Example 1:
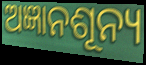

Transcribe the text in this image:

ଅଜ୍ଞାନଶୂନ୍ୟ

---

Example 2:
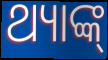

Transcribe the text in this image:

ଥ୍ୟାଙ୍କ୍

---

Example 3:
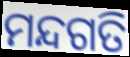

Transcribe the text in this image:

ମନ୍ଦଗତି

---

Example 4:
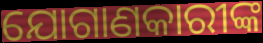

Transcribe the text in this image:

ଯୋଗାଣକାରୀଙ୍କ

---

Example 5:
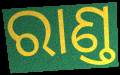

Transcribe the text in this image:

ରାଣ୍ଡ